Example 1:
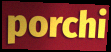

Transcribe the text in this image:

porchi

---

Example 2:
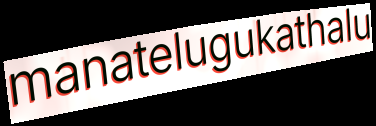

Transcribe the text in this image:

manatelugukathalu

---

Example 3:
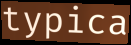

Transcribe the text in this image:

typica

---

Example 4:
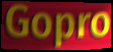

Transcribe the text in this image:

Gopro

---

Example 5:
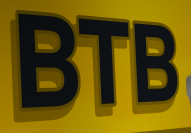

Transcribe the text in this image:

BTB